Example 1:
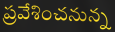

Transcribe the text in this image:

ప్రవేశించనున్న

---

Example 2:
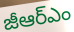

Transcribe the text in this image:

జీఆర్ఎం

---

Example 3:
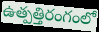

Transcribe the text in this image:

ఉత్పత్తిరంగంలో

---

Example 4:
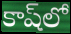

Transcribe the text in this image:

కాష్‌లో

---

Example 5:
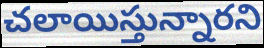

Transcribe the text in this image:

చలాయిస్తున్నారని